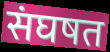
संघषत